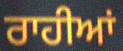
ਰਾਹੀਆਂ